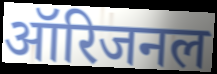
ऑरिजनल